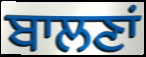
ਬਾਲਣਾਂ